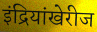
इंद्रियांखेरीज